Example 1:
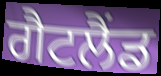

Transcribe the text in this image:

ਗੈਟਲੈਂਡ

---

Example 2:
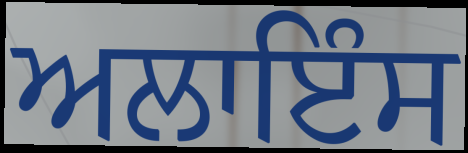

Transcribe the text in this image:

ਅਲਾਇੰਸ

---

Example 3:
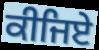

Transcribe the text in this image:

ਕੀਜਿਏ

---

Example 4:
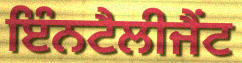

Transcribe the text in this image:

ਇੰਨਟੈਲੀਜੈਂਟ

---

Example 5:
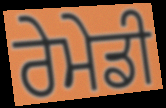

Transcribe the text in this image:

ਰੇਮੇਡੀ